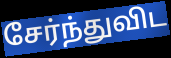
சேர்ந்துவிட